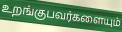
உறங்குபவர்களையும்